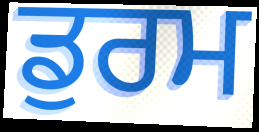
ਡੁਰਮ